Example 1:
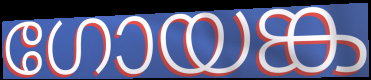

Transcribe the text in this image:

ഗോയങ്ക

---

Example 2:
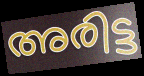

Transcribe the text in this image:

അരിട്ട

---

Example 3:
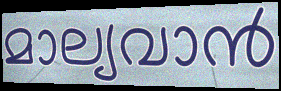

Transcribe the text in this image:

മാല്യവാൻ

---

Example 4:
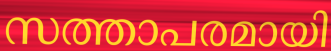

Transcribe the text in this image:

സത്താപരമായി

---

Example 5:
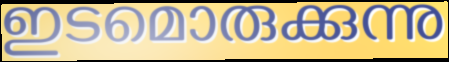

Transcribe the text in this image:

ഇടമൊരുക്കുന്നു